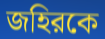
জহিরকে